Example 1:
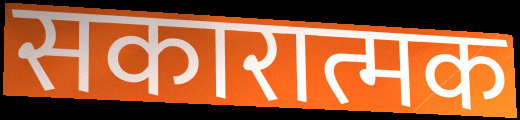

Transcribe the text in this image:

सकारात्‍मक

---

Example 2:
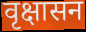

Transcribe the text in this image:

वृक्षासन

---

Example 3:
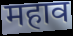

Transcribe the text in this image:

महाव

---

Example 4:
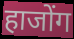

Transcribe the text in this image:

हाजोंग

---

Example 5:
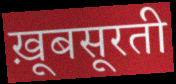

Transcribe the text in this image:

ख़ूबसूरती